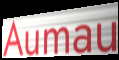
Aumau